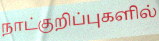
நாட்குறிப்புகளில்